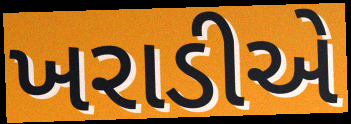
ખરાડીએ